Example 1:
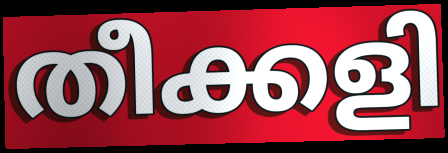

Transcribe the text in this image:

തീക്കളി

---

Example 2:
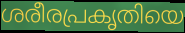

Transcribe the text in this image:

ശരീരപ്രകൃതിയെ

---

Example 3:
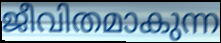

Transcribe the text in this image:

ജീവിതമാകുന്ന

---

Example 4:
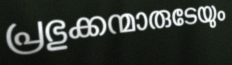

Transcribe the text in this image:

പ്രഭുക്കന്മാരുടേയും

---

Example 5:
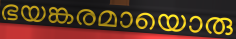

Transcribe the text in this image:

ഭയങ്കരമായൊരു